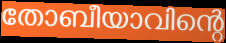
തോബീയാവിന്റെ